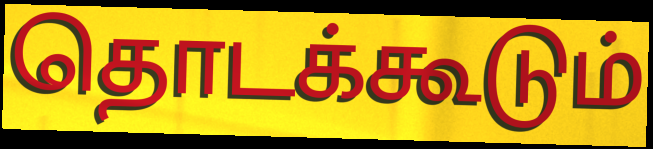
தொடக்கூடும்